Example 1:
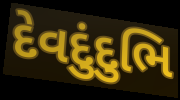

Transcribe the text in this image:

દેવદુંદુભિ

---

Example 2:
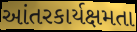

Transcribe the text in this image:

આંતરકાર્યક્ષમતા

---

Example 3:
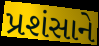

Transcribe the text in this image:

પ્રશંસાને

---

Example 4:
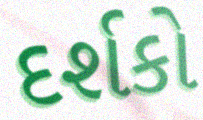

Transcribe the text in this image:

દર્શકો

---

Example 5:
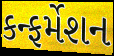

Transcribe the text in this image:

કન્ફર્મેશન